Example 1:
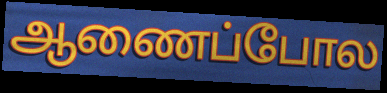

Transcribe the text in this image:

ஆணைப்போல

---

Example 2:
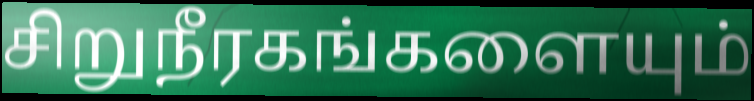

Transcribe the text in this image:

சிறுநீரகங்களையும்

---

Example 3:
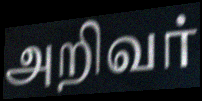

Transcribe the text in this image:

அறிவர்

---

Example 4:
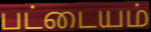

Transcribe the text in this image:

பட்டையம்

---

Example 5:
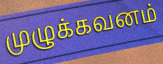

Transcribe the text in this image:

முழுக்கவனம்